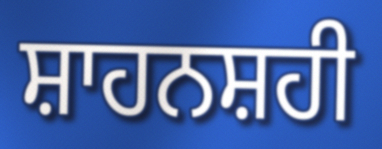
ਸ਼ਾਹਨਸ਼ਹੀ